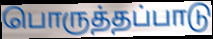
பொருத்தப்பாடு